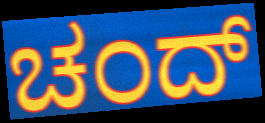
ಚಂದ್